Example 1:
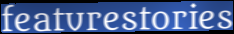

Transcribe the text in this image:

featurestories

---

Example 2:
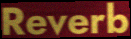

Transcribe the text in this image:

Reverb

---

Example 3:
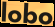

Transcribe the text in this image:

lobo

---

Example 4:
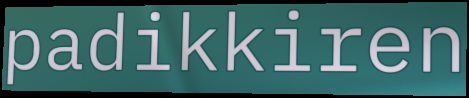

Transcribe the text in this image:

padikkiren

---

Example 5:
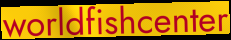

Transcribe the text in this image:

worldfishcenter